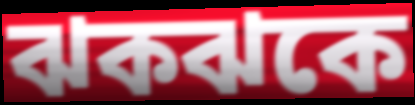
ঝকঝকে